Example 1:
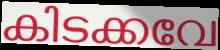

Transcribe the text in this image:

കിടക്കവേ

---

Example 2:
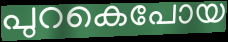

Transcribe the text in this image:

പുറകെപോയ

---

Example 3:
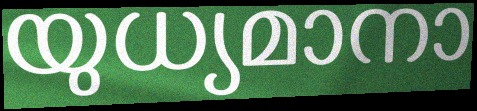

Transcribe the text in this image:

യുധ്യമാനാ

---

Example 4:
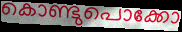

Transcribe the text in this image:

കൊണ്ടുപൊക്കോ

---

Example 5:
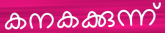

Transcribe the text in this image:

കനകക്കുന്ന്